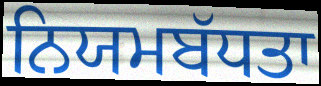
ਨਿਯਮਬੱਧਤਾ